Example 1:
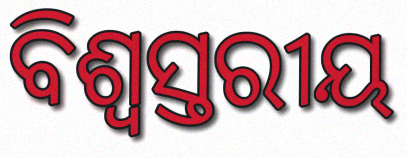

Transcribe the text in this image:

ବିଶ୍ଵସ୍ତରୀୟ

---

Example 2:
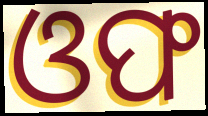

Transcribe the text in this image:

ଓଫ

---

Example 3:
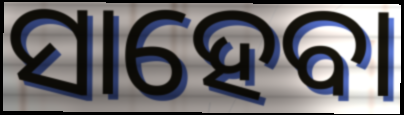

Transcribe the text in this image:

ସାହେବା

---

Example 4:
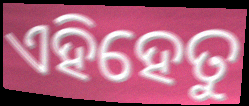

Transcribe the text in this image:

ଏହିହେତୁ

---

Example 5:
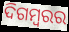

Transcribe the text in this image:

ଦିଗମ୍ୱରର